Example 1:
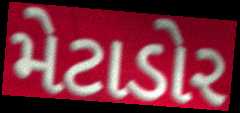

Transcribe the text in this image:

મેટાડોર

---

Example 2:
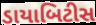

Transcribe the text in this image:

ડાયાબિટીસ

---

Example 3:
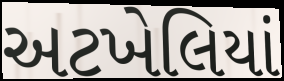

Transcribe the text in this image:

અટખેલિયાં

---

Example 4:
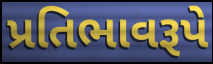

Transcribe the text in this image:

પ્રતિભાવરૂપે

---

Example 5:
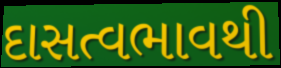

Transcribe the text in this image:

દાસત્વભાવથી